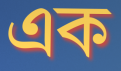
এক